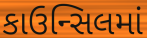
કાઉન્સિલમાં